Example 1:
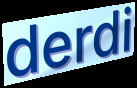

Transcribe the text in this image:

derdi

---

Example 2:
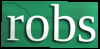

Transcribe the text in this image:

robs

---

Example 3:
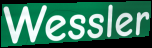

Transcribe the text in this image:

Wessler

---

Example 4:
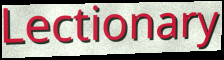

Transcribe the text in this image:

Lectionary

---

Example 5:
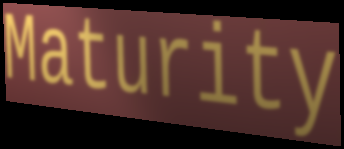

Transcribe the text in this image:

Maturity